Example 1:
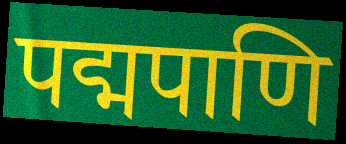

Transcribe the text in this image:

पद्मपाणि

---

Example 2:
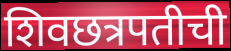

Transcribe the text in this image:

शिवछत्रपतीची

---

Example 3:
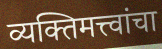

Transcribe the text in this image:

व्यक्तिमत्त्वांचा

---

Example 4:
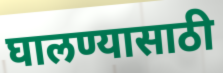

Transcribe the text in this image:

घालण्यासाठी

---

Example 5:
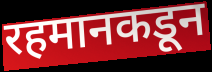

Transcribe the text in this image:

रहमानकडून